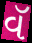
વૅ